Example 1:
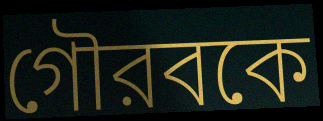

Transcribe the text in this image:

গৌরবকে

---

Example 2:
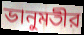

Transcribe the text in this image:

ভানুমতীর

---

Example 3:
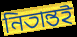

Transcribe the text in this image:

নিতান্তই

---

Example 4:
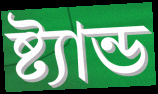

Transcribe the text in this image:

ষ্ট্যান্ড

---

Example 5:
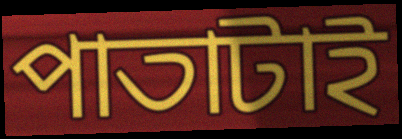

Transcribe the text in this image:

পাতাটাই